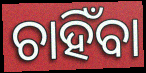
ଚାହିଁବା